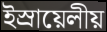
ইস্রায়েলীয়